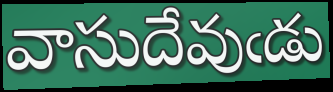
వాసుదేవుఁడు